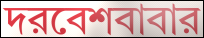
দরবেশবাবার